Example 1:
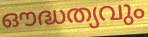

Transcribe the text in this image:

ഔദ്ധത്യവും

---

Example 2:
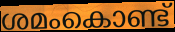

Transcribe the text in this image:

ശമംകൊണ്ട്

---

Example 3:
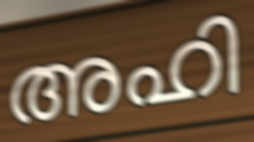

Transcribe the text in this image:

അഹി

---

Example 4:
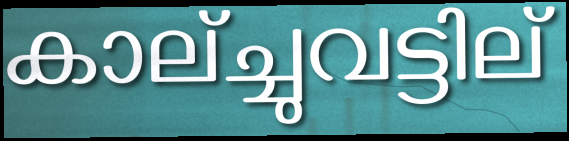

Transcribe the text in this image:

കാല്ച്ചുവട്ടില്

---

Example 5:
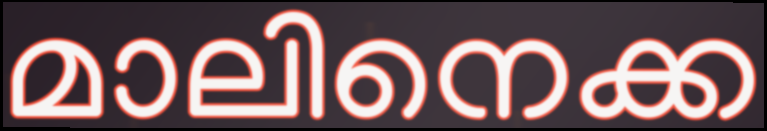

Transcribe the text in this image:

മാലിനെക്ക